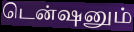
டென்ஷனும்